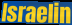
Israelin